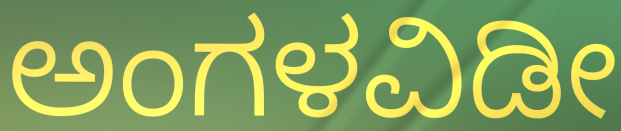
ಅಂಗಳವಿಡೀ